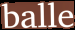
balle